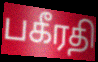
பகீரதி